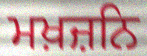
ਮਖ਼ਜ਼ਨਿ